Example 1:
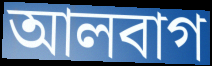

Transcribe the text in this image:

আলবাগ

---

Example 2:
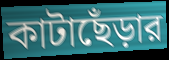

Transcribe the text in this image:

কাটাছেঁড়ার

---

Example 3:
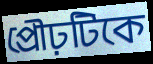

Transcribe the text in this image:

প্রৌঢ়টিকে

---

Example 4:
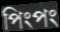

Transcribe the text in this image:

পিংপং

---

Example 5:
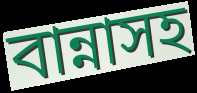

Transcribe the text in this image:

বান্নাসহ